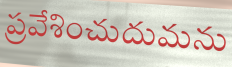
ప్రవేశించుదుమను